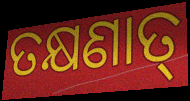
ତକ୍ଷଣାତ୍